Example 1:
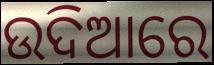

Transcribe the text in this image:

ଉଦିଆରେ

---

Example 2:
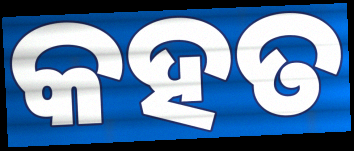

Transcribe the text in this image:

କହତ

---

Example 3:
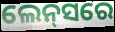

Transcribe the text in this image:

ଲେନ୍‌ସରେ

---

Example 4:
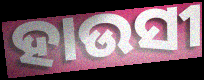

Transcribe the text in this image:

ହାଉସୀ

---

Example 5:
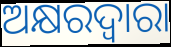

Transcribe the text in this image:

ଅକ୍ଷରଦ୍ଵାରା